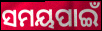
ସମୟପାଇଁ